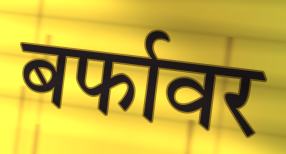
बर्फावर